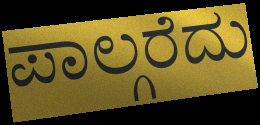
ಪಾಲ್ಗರೆದು